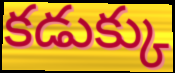
కడుక్కు